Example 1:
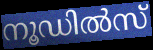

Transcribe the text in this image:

നൂഡിൽസ്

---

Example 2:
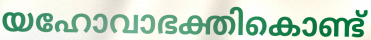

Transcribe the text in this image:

യഹോവാഭക്തികൊണ്ട്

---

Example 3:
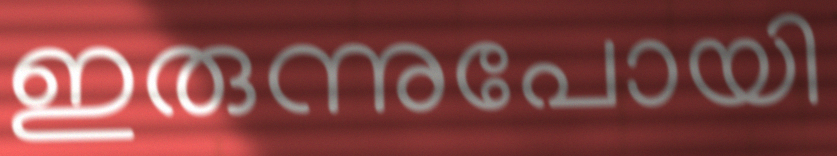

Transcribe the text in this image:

ഇരുന്നുപോയി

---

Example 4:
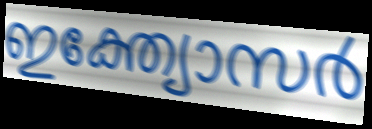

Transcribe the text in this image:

ഇക്ത്യോസർ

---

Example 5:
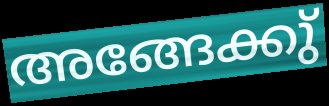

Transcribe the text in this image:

അങ്ങേക്കു്